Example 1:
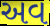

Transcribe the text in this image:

અવ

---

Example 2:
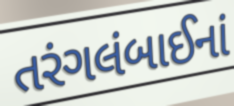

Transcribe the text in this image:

તરંગલંબાઈનાં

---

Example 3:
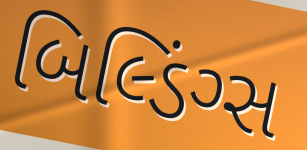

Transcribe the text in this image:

બિલ્ડિંગ્સ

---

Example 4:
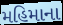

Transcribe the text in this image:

મહિમાના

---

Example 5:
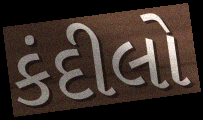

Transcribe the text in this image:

કંદીલો